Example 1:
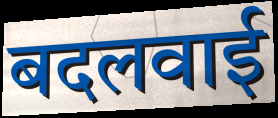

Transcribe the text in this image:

बदलवाई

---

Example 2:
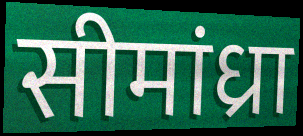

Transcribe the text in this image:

सीमांध्रा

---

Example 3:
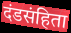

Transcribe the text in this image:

दंडसंहिता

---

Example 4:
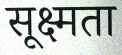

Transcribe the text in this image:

सूक्ष्मता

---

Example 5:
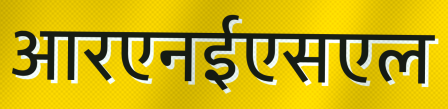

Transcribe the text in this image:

आरएनईएसएल